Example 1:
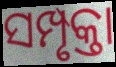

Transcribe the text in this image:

ସମ୍ପୃକ୍ତା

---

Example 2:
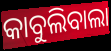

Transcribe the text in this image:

କାବୁଲିବାଲା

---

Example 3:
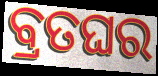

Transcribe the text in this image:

ବ୍ରତଘର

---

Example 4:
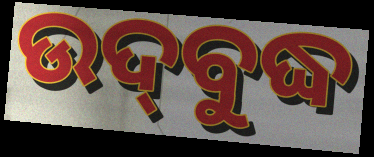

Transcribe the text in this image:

ଉଦ୍‍ବୁଦ୍ଧ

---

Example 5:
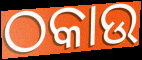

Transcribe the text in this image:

ଠକାଉ